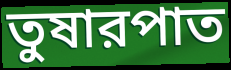
তুষারপাত